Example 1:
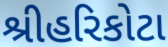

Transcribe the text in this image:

શ્રીહરિકોટા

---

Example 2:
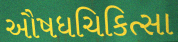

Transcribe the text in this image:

ઔષધચિકિત્સા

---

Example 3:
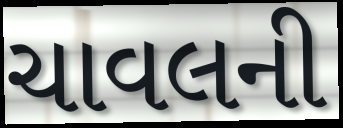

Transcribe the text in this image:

ચાવલની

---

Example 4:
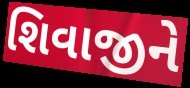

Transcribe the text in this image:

શિવાજીને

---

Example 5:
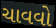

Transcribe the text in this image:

ચાવવો